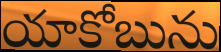
యాకోబును